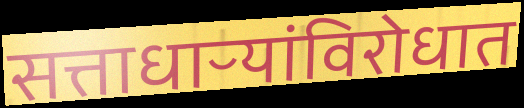
सत्ताधाऱ्यांविरोधात